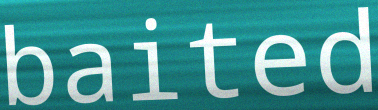
baited